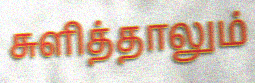
சுளித்தாலும்